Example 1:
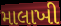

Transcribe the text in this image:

માલાખી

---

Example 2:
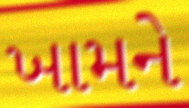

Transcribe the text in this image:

ખામને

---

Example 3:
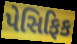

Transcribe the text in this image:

પેસિફિક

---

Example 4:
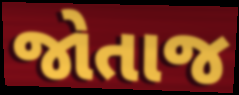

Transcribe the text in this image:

જોતાજ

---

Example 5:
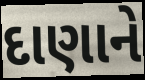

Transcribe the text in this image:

દાણાને